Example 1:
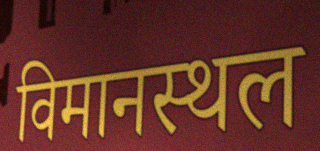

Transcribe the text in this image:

विमानस्थल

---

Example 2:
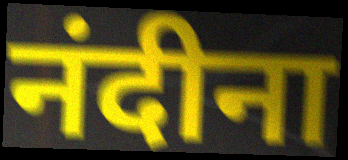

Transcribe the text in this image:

नंदीना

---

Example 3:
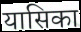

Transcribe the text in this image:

यासिका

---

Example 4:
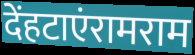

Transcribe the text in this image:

देंहटाएंरामराम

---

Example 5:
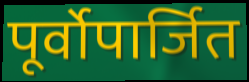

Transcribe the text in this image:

पूर्वोपार्जित